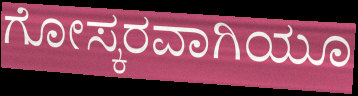
ಗೋಸ್ಕರವಾಗಿಯೂ